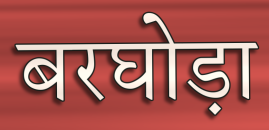
बरघोड़ा